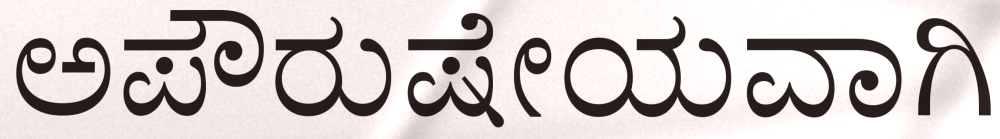
ಅಪೌರುಷೇಯವಾಗಿ